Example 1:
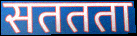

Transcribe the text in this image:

सततता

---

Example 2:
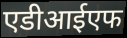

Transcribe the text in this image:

एडीआईएफ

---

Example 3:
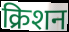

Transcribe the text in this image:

क्रिशन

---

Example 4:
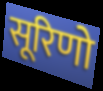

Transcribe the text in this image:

सूरिणो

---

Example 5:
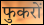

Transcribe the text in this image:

फुकरों